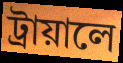
ট্রায়ালে